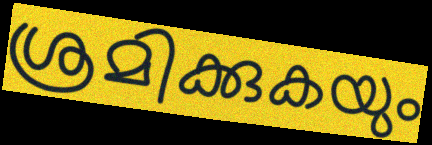
ശ്രമിക്കുകയും